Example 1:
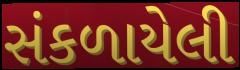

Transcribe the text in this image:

સંકળાયેલી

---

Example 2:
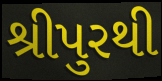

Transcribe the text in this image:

શ્રીપુરથી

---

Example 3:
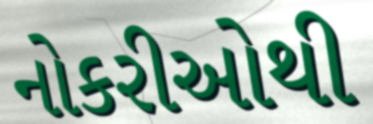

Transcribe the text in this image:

નોકરીઓથી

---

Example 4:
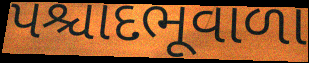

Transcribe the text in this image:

પશ્ચાદભૂવાળા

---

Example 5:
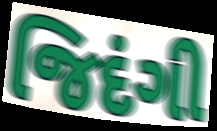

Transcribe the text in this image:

જિદંગી